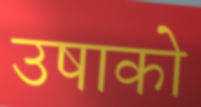
उषाको